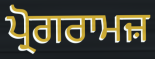
ਪ੍ਰੋਗਰਾਮਜ਼